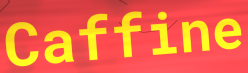
Caffine